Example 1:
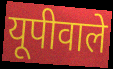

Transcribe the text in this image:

यूपीवाले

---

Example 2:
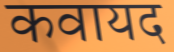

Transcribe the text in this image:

कवायद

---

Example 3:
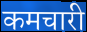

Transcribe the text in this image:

कमचारी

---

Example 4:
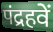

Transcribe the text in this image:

पंद्रहवें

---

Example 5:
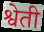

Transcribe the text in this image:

श्वेती